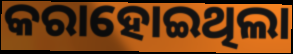
କରାହୋଇଥିଲା